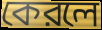
কেরলে